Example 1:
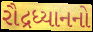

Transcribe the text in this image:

રૌદ્રધ્યાનનો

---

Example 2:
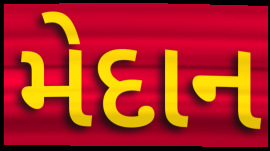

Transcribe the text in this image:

મેદાન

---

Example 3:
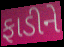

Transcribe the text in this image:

ફાડીને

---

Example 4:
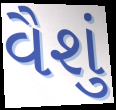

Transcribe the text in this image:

વૈશું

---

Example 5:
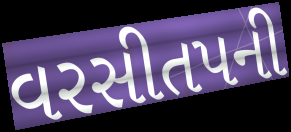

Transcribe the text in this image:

વરસીતપની